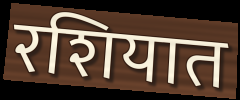
रशियात